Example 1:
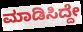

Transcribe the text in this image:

ಮಾಡಿಸಿದ್ದೇ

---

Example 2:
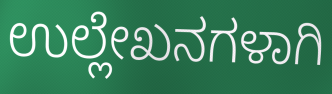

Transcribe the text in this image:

ಉಲ್ಲೇಖನಗಳಾಗಿ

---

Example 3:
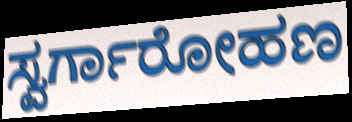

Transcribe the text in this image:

ಸ್ವರ್ಗಾರೋಹಣ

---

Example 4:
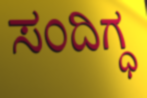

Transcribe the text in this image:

ಸಂದಿಗ್ಧ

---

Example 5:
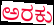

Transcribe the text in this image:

ಅರಕು